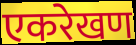
एकरेखण